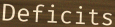
Deficits